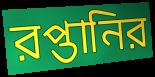
রপ্তানির